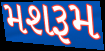
મશરૂમ